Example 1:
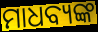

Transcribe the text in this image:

ମାଧବ୍ୟଙ୍କ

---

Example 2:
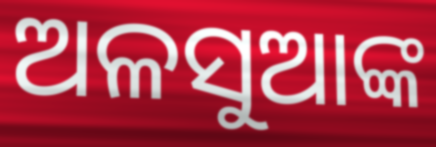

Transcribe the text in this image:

ଅଳସୁଆଙ୍କ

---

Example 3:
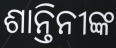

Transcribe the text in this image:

ଶାନ୍ତିନୀଙ୍କ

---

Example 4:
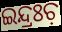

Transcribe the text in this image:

ଇନ୍ଦ୍ରଃଚ଼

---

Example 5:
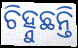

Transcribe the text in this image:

ଚିହ୍ନୁଛନ୍ତି